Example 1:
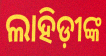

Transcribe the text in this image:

ଲାହିଡ଼ୀଙ୍କ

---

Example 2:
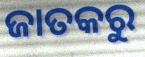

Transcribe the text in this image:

ଜାତକରୁ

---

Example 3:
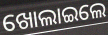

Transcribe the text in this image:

ଖୋଲାଇଲେ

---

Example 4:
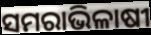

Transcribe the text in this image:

ସମରାଭିଳାଷୀ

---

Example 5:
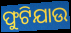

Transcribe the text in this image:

ଫୁଟିଯାଉ